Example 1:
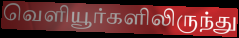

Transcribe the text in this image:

வெளியூர்களிலிருந்து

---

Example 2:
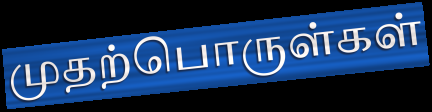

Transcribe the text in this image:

முதற்பொருள்கள்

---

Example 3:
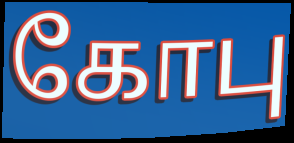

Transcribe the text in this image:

கோபு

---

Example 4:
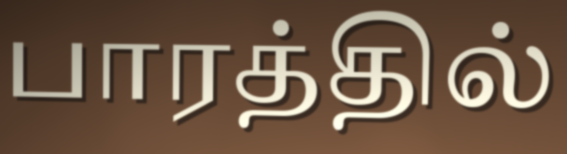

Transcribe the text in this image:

பாரத்தில்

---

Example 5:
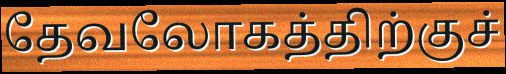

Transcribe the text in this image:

தேவலோகத்திற்குச்